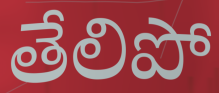
తేలిపో